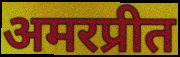
अमरप्रीत